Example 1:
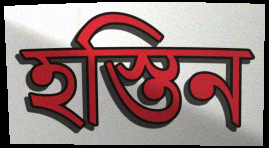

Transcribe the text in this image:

হস্তিন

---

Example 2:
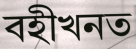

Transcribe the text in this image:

বহীখনত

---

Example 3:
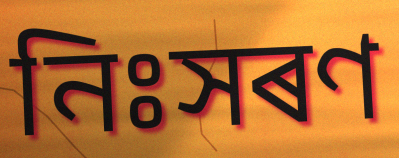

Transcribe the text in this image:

নিঃসৰণ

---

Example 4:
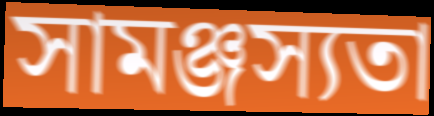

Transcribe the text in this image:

সামঞ্জস্যতা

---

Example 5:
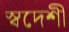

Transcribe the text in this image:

স্বদেশী